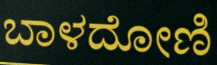
ಬಾಳದೋಣಿ